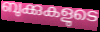
ബുക്കുകളുടെ